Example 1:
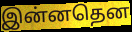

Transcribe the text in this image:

இன்னதென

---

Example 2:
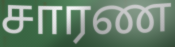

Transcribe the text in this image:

சாரண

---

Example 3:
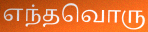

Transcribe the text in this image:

எந்தவொரு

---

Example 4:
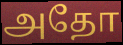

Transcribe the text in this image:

அதோ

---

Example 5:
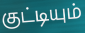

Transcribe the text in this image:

குட்டியும்